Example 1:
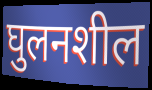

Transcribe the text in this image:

घुलनशील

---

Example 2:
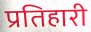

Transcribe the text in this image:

प्रतिहारी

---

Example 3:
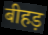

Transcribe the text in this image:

बीहड़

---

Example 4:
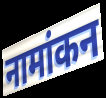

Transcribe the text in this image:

नामांकन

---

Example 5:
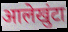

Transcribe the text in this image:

आलेखुंटा